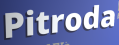
Pitroda